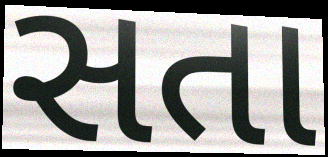
સતા